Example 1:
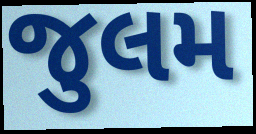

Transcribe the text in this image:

જુલમ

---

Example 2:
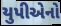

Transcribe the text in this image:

યુપીએનો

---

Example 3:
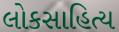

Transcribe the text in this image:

લોકસાહિત્ય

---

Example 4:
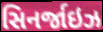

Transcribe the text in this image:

સિનર્જાઇઝ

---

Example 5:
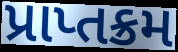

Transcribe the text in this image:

પ્રાપ્તક્રમ